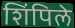
शिंपिले